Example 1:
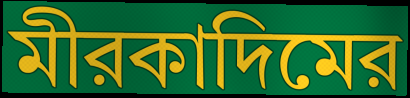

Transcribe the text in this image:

মীরকাদিমের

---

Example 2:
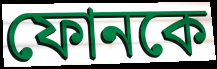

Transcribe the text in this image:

ফোনকে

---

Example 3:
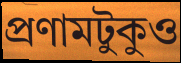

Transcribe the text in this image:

প্রণামটুকুও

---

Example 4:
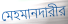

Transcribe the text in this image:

মেহমানদারীর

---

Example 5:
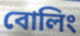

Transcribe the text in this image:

বোলিং